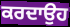
ਕਰਦਾਉਹ